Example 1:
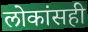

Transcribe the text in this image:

लोकांसही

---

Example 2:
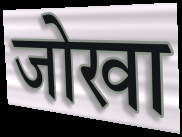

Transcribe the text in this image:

जोखा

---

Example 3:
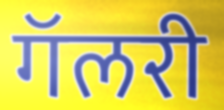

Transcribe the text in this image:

गॅलरी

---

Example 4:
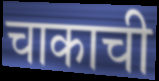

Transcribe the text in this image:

चाकाची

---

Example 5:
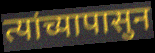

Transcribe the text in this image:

त्यांच्यापासुन